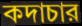
কদাচার